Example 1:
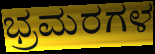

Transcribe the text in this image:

ಭ್ರಮರಗಳ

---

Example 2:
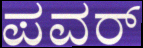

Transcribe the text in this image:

ಪವರ್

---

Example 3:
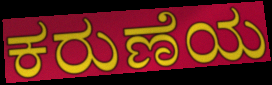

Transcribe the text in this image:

ಕರುಣೆಯ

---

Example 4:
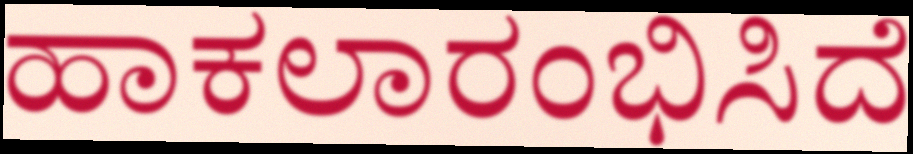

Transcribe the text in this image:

ಹಾಕಲಾರಂಭಿಸಿದೆ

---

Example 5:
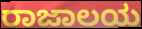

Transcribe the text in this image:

ರಾಜಾಲಯ